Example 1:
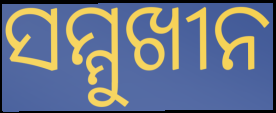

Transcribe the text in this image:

ସମ୍ମୁଖୀନ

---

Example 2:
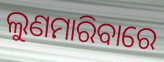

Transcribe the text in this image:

ଲୁଣମାରିବାରେ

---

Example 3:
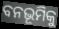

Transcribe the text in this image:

ବନଭୂମିକୁ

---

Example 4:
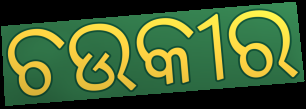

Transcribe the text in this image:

ଚଉକୀର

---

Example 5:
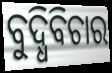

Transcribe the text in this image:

ବୁଦ୍ଧିବିଚାର